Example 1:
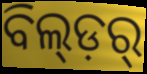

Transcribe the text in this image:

ବିଲ୍ଡ଼ର୍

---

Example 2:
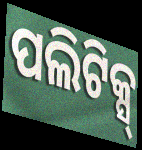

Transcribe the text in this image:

ପଲିଟିକ୍ସ୍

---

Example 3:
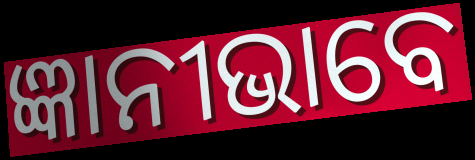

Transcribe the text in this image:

ଜ୍ଞାନୀଭାବେ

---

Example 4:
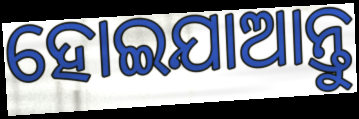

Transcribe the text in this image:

ହୋଇଯାଆନ୍ତୁ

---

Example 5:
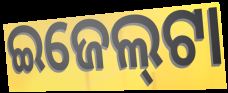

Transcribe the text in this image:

ଇଜେଲ୍‍ଟା